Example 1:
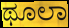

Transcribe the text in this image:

ಥೂಲಾ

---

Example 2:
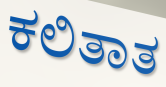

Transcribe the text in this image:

ಕಲಿತಾತ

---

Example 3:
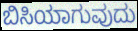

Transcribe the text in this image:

ಬಿಸಿಯಾಗುವುದು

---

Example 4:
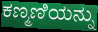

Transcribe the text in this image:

ಕಣ್ಮಣಿಯನ್ನು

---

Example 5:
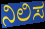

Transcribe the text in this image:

ನಿಲಿಸ